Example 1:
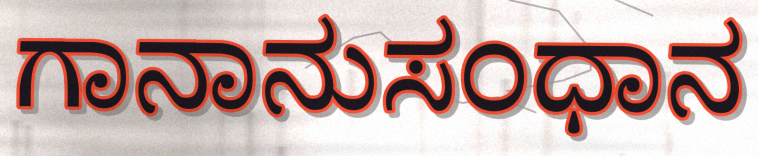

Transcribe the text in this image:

ಗಾನಾನುಸಂಧಾನ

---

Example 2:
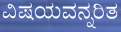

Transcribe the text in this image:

ವಿಷಯವನ್ನರಿತ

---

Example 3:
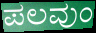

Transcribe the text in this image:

ಪಲವುಂ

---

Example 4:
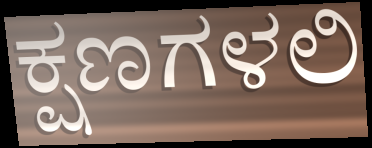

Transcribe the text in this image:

ಕ್ಷಣಗಳಲಿ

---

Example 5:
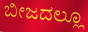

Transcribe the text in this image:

ಬೀಜದಲ್ಲೂ